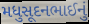
મધુસૂદનભાઈનું